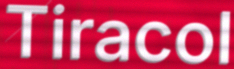
Tiracol